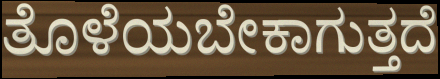
ತೊಳೆಯಬೇಕಾಗುತ್ತದೆ